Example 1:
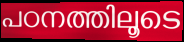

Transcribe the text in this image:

പഠനത്തിലൂടെ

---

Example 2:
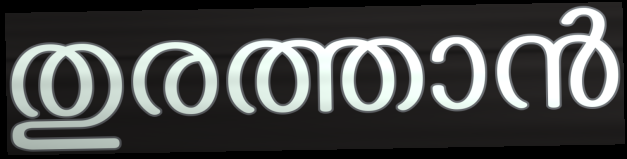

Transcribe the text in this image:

തുരത്താൻ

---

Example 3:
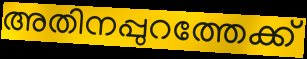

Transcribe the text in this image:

അതിനപ്പുറത്തേക്ക്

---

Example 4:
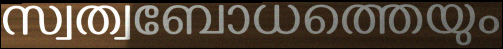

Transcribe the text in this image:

സ്വത്വബോധത്തെയും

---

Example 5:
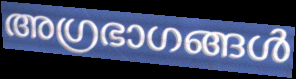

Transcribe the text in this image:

അഗ്രഭാഗങ്ങൾ